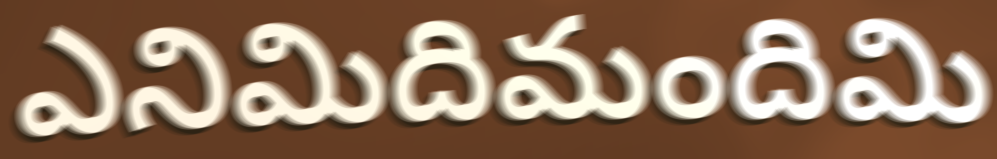
ఎనిమిదిమందిమి